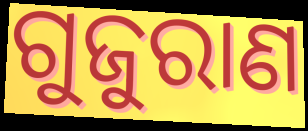
ଗୁଜୁରାଣ